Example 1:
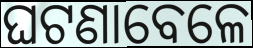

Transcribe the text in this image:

ଘଟଣାବେଳେ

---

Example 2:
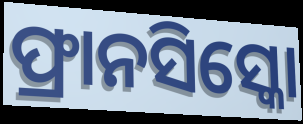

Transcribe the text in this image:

ଫ୍ରାନସିସ୍କୋ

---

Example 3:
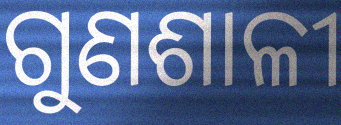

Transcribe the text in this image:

ଗୁଣଶାଳୀ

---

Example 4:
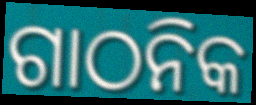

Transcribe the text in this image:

ଗାଠନିକ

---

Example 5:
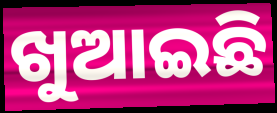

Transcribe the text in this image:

ଖୁଆଇଛି